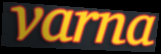
varna